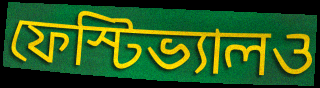
ফেস্টিভ্যালও